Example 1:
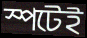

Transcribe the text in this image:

স্পটেই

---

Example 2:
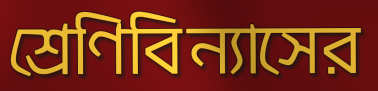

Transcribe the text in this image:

শ্রেণিবিন্যাসের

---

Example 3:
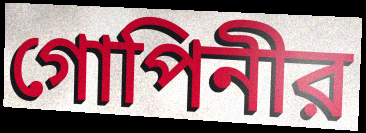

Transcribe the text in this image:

গোপিনীর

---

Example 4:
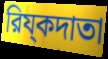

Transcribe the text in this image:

রিয্কদাতা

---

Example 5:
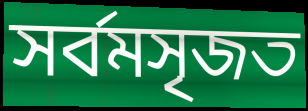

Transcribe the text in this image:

সর্বমসৃজত